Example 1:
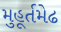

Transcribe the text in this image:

મુહૂર્તમેઢ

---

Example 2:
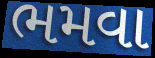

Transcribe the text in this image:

ભમવા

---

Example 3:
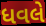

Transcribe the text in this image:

ધવલે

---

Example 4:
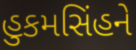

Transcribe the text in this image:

હુકમસિંહને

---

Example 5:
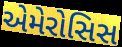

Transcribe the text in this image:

એમેરોસિસ